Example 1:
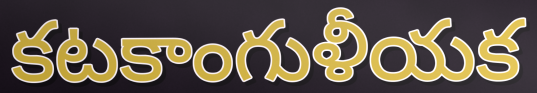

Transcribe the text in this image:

కటకాంగుళీయక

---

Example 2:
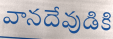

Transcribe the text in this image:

వానదేవుడికి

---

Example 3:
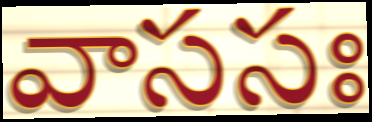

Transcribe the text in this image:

వాససః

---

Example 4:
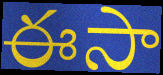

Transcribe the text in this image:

ఈసా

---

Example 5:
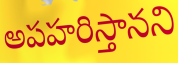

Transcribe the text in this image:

అపహరిస్తానని